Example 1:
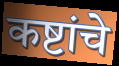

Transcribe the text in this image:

कष्टांचे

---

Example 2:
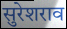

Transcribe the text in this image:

सुरेशराव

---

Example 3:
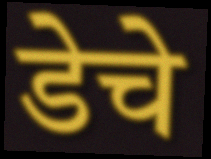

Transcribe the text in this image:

डेचे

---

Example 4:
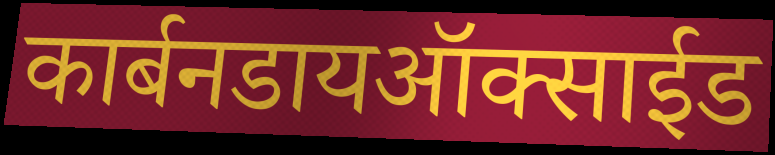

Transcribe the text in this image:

कार्बनडायऑक्साईड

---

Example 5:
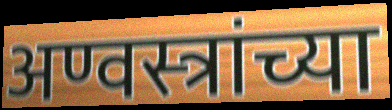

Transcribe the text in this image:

अण्वस्त्रांच्या